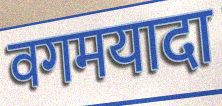
वगमयादा